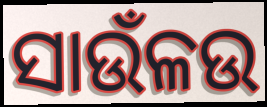
ସାଉଁଳଉ